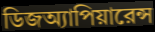
ডিজঅ্যাপিয়ারেন্স